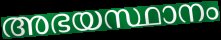
അഭയസ്ഥാനം